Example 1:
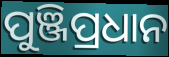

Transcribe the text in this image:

ପୁଞ୍ଜିପ୍ରଧାନ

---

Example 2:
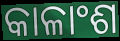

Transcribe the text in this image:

କାଳାଂଶ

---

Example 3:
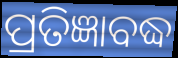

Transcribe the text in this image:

ପ୍ରତିଜ୍ଞାବଦ୍ଧ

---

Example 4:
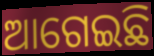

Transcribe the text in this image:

ଆଗେଇଛି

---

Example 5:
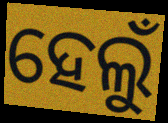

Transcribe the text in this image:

ହେଲୁଁ